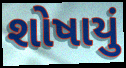
શોષાયું